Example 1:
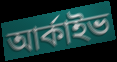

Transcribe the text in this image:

আর্কাইভ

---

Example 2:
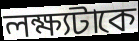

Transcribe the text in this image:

লক্ষ্যটাকে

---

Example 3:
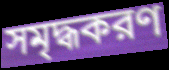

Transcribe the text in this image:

সমৃদ্ধকরণ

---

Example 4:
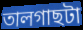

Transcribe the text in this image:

তালগাছটা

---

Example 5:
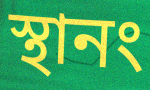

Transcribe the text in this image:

স্থানং